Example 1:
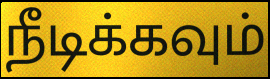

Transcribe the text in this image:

நீடிக்கவும்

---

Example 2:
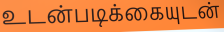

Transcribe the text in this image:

உடன்படிக்கையுடன்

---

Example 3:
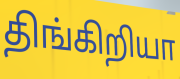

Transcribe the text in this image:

திங்கிறியா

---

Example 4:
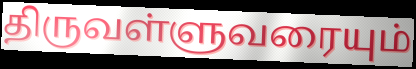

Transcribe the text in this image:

திருவள்ளுவரையும்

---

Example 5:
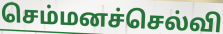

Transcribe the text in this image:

செம்மனச்செல்வி